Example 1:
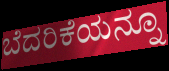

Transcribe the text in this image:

ಬೆದರಿಕೆಯನ್ನೂ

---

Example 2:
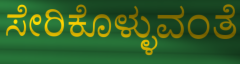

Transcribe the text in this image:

ಸೇರಿಕೊಳ್ಳುವಂತೆ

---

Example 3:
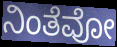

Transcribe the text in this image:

ನಿಂತೆವೋ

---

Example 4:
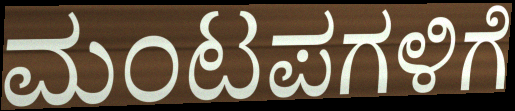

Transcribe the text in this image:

ಮಂಟಪಗಳಿಗೆ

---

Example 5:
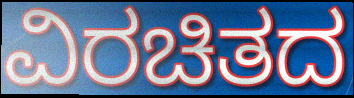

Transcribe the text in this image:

ವಿರಚಿತದ